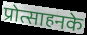
प्रोत्साहनके